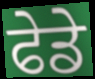
ਫੇਡੇ